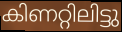
കിണറ്റിലിട്ടു